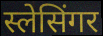
स्लेसिंगर